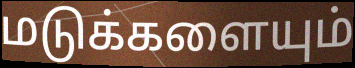
மடுக்களையும்